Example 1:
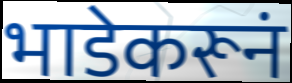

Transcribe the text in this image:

भाडेकरूनं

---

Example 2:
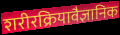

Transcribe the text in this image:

शरीरक्रियावैज्ञानिक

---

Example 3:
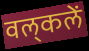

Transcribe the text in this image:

वल्कलें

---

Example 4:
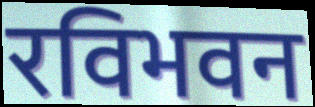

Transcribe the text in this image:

रविभवन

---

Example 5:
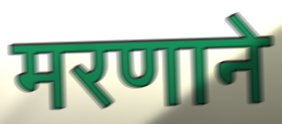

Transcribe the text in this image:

मरणाने